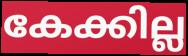
കേക്കില്ല